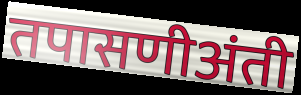
तपासणीअंती